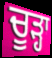
ਚੂੜ੍ਹਾ